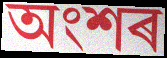
অংশৰ